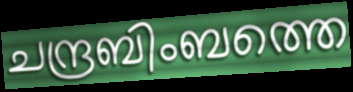
ചന്ദ്രബിംബത്തെ